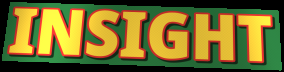
INSIGHT